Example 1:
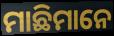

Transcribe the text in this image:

ମାଛିମାନେ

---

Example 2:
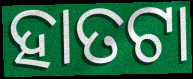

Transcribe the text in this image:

ହାତଟା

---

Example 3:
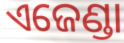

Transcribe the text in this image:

ଏଜେଣ୍ଡା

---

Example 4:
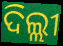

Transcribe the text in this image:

ଦିଲ୍ଲୀ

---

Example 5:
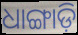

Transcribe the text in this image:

ଧାଙ୍ଗାଡ଼ି